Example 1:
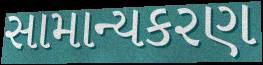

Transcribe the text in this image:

સામાન્યકરણ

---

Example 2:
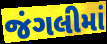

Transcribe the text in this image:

જંગલીમાં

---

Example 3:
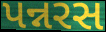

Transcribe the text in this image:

પન્નરસ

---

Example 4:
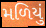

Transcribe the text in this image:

મળિયું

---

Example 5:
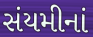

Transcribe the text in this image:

સંયમીનાં